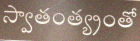
స్వాతంత్య్రంతో